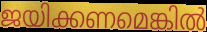
ജയിക്കണമെങ്കിൽ